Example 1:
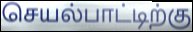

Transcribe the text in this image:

செயல்பாட்டிற்கு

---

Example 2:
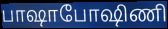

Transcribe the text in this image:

பாஷாபோஷிணி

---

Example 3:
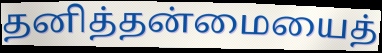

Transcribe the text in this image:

தனித்தன்மையைத்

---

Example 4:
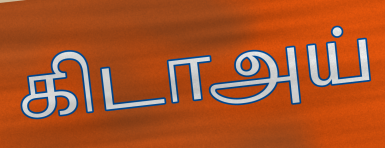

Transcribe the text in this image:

கிடாஅய்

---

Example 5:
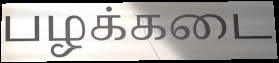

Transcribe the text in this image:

பழக்கடை